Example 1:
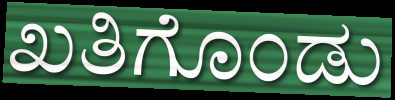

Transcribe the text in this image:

ಖತಿಗೊಂಡು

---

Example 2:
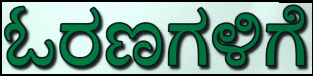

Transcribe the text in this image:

ಓರಣಗಳಿಗೆ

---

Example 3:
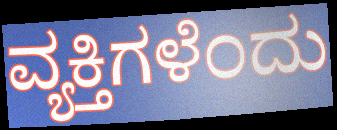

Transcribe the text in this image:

ವ್ಯಕ್ತಿಗಳೆಂದು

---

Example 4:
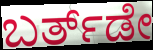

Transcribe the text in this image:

ಬರ್ತ್‌ಡೇ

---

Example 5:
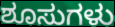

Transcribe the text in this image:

ಶೂಸುಗಳು